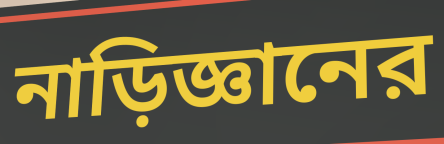
নাড়িজ্ঞানের